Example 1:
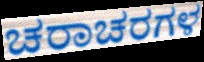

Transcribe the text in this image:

ಚರಾಚರಗಳ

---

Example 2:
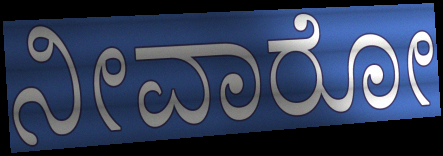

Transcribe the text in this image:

ನೀವಾರೋ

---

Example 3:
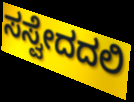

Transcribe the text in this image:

ಸಸ್ವೇದದಲಿ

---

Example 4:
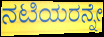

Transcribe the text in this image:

ನಟಿಯರನ್ನೇ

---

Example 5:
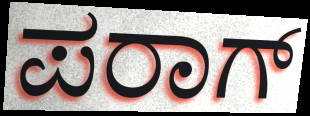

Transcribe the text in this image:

ಪರಾಗ್